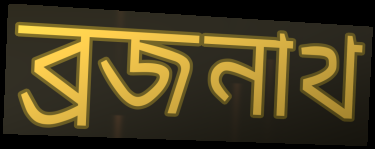
ব্রজনাথ